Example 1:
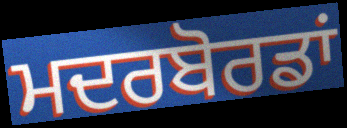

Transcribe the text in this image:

ਮਦਰਬੋਰਡਾਂ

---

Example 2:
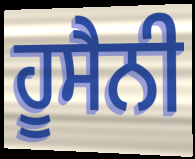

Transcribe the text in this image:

ਹੂਸੈਨੀ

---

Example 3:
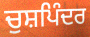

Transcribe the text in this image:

ਚੁਸ਼ਪਿੰਦਰ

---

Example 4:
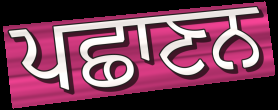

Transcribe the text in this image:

ਪਛਾਣਨ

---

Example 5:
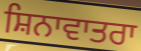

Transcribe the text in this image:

ਸ਼ਿਨਾਵਾਤਰਾ